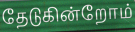
தேடுகின்றோம்